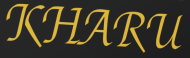
KHARU